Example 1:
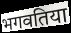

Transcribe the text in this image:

भगवतिया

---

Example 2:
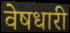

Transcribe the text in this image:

वेषधारी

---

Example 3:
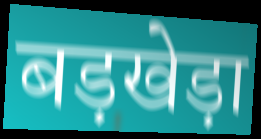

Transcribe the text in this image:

बड़खेड़ा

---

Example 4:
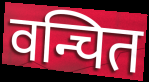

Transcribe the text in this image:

वन्चित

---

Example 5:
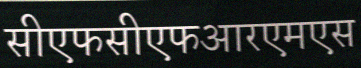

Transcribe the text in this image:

सीएफसीएफआरएमएस